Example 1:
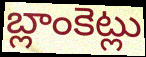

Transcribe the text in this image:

బ్లాంకెట్లు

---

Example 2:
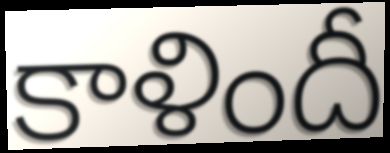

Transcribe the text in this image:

కాళిందీ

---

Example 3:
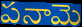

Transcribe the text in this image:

పనామె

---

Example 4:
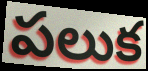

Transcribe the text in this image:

పలుక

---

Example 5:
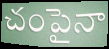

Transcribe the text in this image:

చంపైనా